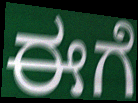
ಈಗೆ